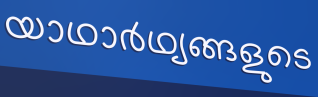
യാഥാർഥ്യങ്ങളുടെ